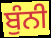
ਬੁੰਨੀ